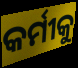
କର୍ମୀକୁ